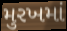
મુરખમાં